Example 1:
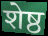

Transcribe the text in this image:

शेष्ठ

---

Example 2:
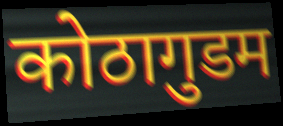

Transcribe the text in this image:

कोठागुडम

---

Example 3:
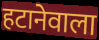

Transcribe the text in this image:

हटानेवाला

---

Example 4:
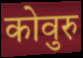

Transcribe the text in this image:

कोवुरु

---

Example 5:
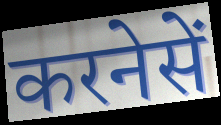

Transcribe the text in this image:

करनेसें